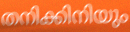
തനിക്കിനിയും